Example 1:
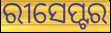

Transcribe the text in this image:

ରୀସେପ୍ଟର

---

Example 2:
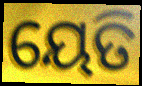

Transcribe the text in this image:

ୟେତି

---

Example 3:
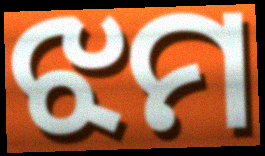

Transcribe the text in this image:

ଝମ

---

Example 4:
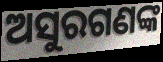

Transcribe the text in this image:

ଅସୁରଗଣଙ୍କ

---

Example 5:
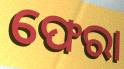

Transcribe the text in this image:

ଫେରା